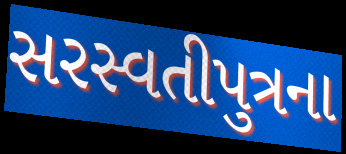
સરસ્વતીપુત્રના